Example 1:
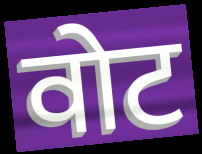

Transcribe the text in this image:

वोट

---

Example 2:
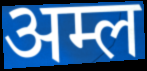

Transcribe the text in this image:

अम्ल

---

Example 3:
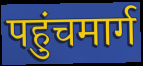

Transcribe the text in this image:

पहुंचमार्ग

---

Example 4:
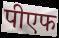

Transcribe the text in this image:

पीएफ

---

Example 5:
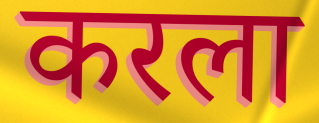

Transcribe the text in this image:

करला